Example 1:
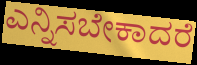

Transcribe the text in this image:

ಎನ್ನಿಸಬೇಕಾದರೆ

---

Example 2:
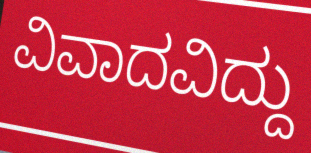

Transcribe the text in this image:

ವಿವಾದವಿದ್ದು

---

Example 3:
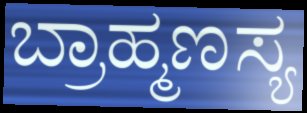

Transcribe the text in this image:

ಬ್ರಾಹ್ಮಣಸ್ಯ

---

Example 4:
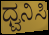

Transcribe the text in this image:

ಧ್ವನಿಸಿ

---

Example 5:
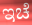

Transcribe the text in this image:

ಇಚೆ